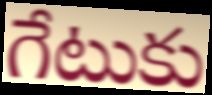
గేటుకు